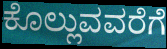
ಕೊಲ್ಲುವವರೆಗೆ